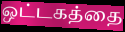
ஒட்டகத்தை